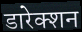
डारेक्शन